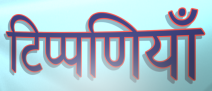
टिप्पणियाँ